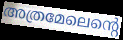
അത്രമേലെന്റെ